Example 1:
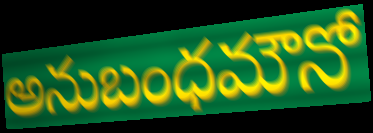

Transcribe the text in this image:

అనుబంధమౌనో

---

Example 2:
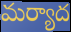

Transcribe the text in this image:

మర్యాద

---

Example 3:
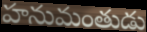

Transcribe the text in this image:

హనుమంతుడు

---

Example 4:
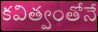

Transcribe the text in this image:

కవిత్వంతోనే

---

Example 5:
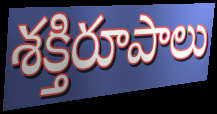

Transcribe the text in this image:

శక్తిరూపాలు